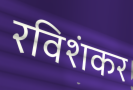
रविशंकर